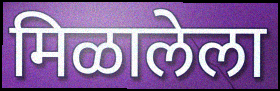
मिळालेला